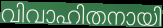
വിവാഹിതനായി